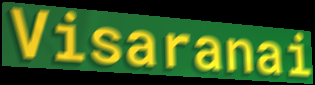
Visaranai